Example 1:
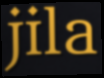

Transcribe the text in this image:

jila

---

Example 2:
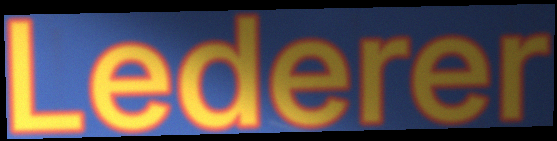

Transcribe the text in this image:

Lederer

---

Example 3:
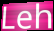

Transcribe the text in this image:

Leh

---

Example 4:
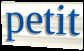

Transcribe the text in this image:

petit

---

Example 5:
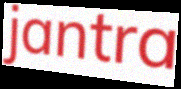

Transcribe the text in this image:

jantra